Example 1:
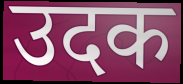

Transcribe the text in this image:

उदक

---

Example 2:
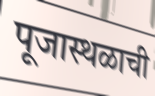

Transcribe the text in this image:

पूजास्थळाची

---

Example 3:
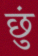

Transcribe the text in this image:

छुं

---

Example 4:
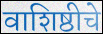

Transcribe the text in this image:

वाशिष्ठीचे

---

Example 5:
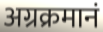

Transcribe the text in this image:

अग्रक्रमानं